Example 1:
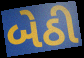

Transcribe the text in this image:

બેઠી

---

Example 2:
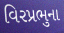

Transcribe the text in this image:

વિરપ્રભુના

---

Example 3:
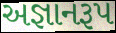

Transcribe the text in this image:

અજ્ઞાનરૂપ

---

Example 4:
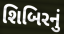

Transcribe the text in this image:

શિબિરનું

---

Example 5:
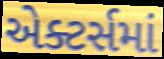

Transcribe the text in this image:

એક્ટર્સમાં